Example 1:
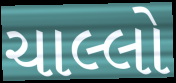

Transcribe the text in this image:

ચાલ્લો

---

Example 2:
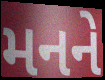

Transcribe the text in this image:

મનને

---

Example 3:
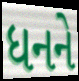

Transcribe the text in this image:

ધનને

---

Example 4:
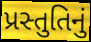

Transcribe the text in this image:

પ્રસ્તુતિનું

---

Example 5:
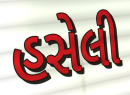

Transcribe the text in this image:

હસેલી